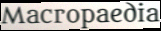
Macropaedia